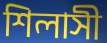
শিলাসী